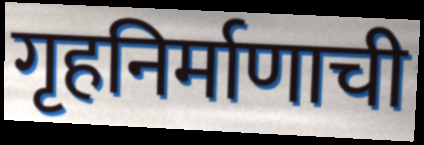
गृहनिर्माणाची